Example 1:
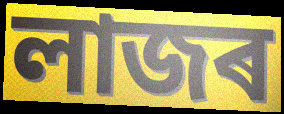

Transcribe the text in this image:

লাজৰ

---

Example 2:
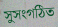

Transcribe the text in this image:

সুসংগঠিত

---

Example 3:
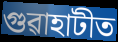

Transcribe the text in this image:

গুৱাহাটীত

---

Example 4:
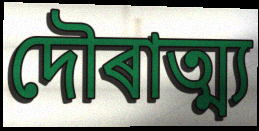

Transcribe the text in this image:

দৌৰাত্ম্য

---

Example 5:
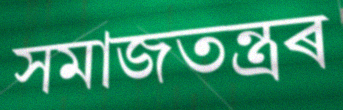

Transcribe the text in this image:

সমাজতন্ত্ৰৰ